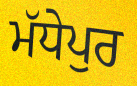
ਮੱਧੇਪੁਰ